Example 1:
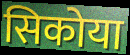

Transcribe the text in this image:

सिकोया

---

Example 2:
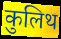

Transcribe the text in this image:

कुलिथ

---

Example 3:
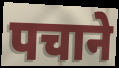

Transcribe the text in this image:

पचाने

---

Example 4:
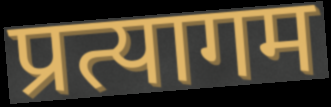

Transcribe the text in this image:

प्रत्यागम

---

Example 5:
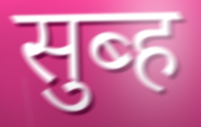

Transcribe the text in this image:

सुब्ह